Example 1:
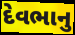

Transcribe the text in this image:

દેવભાનુ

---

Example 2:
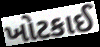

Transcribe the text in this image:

ખોટકાઈ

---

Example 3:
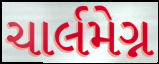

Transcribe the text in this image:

ચાર્લમેગ્ન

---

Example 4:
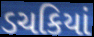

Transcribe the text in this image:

ડચકિયાં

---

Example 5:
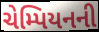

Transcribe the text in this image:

ચેમ્પિયનની